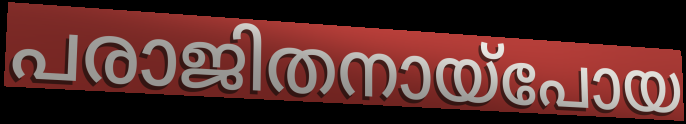
പരാജിതനായ്പോയ